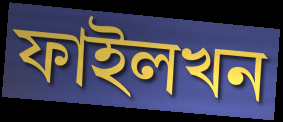
ফাইলখন